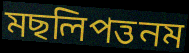
মছলিপত্তনম